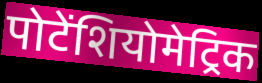
पोटेंशियोमेट्रिक